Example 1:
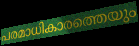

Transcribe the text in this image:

പരമാധികാരത്തെയും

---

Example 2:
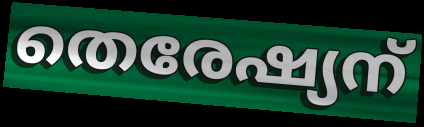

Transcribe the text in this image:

തെരേഷ്യന്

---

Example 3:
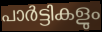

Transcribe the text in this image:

പാർട്ടികളും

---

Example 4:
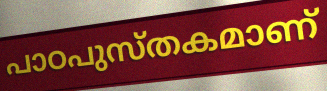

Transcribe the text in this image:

പാഠപുസ്തകമാണ്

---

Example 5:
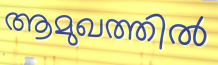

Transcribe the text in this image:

ആമുഖത്തിൽ